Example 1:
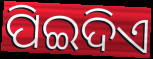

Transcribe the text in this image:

ପିଇଦିଏ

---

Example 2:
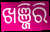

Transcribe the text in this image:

ଖଞ୍ଜିରି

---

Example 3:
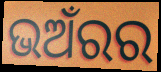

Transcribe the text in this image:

ଭଅଁରର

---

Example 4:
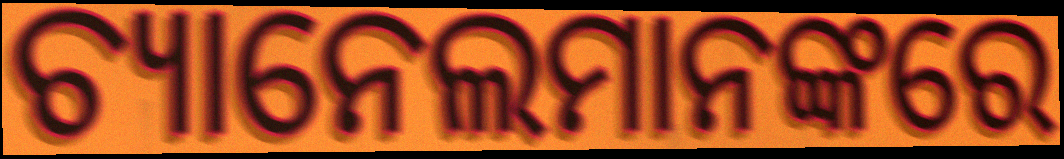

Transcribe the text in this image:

ଚ୍ୟାନେଲମାନଙ୍କରେ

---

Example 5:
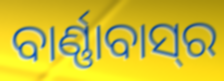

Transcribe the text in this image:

ବାର୍ଣ୍ଣାବାସ୍‌ର